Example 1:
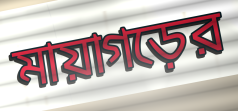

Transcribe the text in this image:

মায়াগড়ের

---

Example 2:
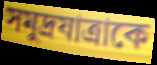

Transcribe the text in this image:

সমুদ্রযাত্রাকে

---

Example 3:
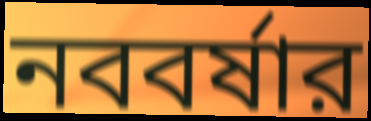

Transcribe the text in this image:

নববর্ষার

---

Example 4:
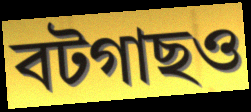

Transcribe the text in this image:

বটগাছও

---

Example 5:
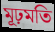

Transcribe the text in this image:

মূঢ়মতি